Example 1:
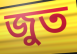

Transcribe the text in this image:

জুত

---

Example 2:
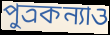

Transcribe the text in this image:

পুত্রকন্যাও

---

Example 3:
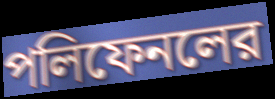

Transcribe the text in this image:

পলিফেনলের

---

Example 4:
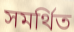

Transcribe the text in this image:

সমর্থিত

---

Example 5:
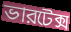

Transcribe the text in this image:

ভারটেক্স